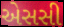
એસસી